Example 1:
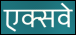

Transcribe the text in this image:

एक्सवे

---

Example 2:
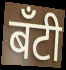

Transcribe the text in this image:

बँटी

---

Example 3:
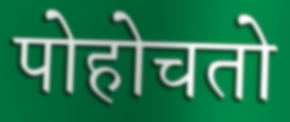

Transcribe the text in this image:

पोहोचतो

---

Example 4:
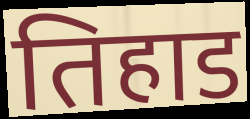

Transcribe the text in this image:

तिहाड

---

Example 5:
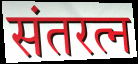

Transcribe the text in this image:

संतरत्न